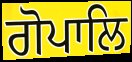
ਗੋਪਾਲਿ